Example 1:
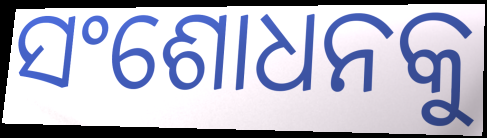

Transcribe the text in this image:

ସଂଶୋଧନକୁ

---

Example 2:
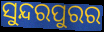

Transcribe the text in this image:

ସୁନ୍ଦରପୁରର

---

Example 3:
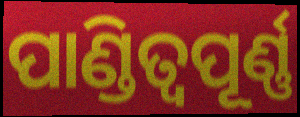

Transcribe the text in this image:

ପାଣ୍ଡିତ୍ୱପୂର୍ଣ୍ଣ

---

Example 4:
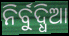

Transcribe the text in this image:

ନିର୍ବୁଦ୍ଧିଆ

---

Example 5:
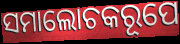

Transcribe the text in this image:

ସମାଲୋଚକରୂପେ